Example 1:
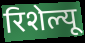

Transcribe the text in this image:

रिशेल्यू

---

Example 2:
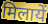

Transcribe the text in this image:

मिलायें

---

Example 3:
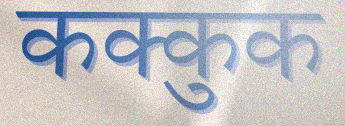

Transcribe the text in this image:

कक्कुक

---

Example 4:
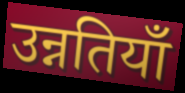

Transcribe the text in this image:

उन्नतियाँ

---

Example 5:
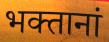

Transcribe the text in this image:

भक्तानां